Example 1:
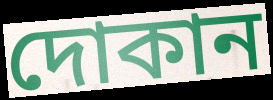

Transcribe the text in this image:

দোকান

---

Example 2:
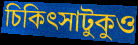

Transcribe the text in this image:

চিকিৎসাটুকুও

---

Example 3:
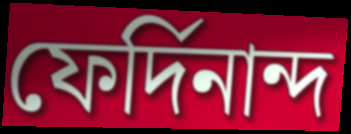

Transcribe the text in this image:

ফের্দিনান্দ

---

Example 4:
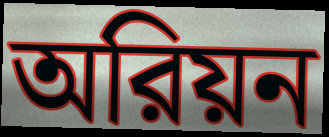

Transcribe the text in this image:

অরিয়ন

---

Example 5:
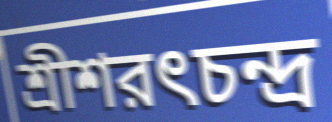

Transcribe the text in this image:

শ্রীশরৎচন্দ্র